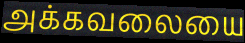
அக்கவலையை